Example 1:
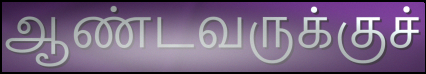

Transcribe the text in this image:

ஆண்டவருக்குச்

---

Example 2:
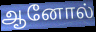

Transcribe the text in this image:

ஆனோல்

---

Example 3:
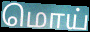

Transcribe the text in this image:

மொய்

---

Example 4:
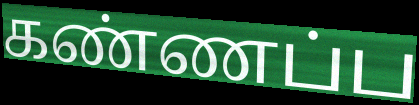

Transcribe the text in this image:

கண்ணப்ப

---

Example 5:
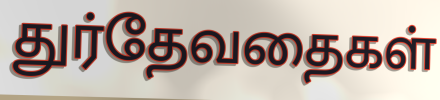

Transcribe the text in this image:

துர்தேவதைகள்